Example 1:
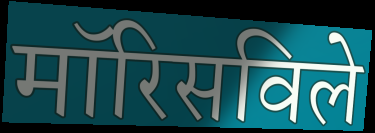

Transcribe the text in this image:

मॉरिसविले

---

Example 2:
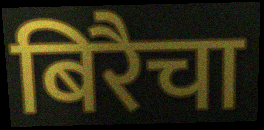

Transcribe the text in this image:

बिरैचा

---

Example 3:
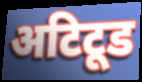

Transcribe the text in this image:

अटिटूड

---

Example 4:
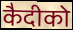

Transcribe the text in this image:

कैदीको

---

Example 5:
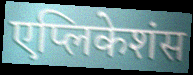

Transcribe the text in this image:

एप्लिकेशंस